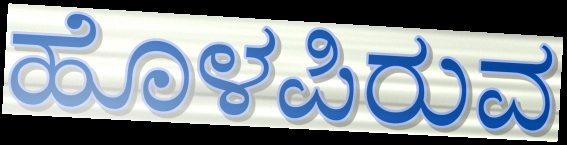
ಹೊಳಪಿರುವ